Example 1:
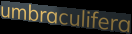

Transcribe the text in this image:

umbraculifera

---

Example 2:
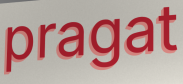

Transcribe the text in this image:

pragat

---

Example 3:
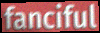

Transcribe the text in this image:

fanciful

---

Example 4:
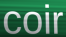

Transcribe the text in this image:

coir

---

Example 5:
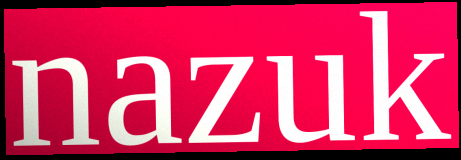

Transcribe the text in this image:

nazuk